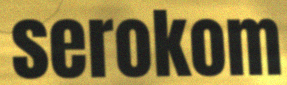
serokom